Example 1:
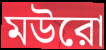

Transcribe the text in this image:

মউরো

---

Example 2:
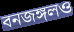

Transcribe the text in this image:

বনজঙ্গলও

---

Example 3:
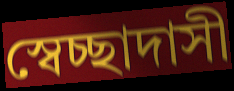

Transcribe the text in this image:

স্বেচ্ছাদাসী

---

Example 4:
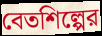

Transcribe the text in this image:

বেতশিল্পের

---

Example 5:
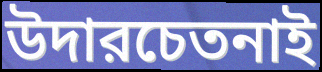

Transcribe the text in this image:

উদারচেতনাই